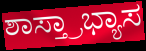
ಶಾಸ್ತ್ರಾಭ್ಯಾಸ